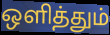
ஒளித்தும்